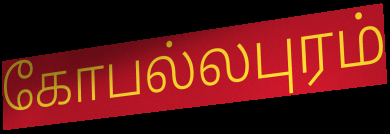
கோபல்லபுரம்